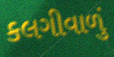
કલગીવાળું